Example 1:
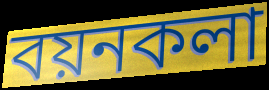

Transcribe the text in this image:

বয়নকলা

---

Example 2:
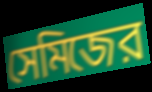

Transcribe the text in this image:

সেমিজের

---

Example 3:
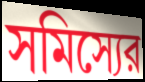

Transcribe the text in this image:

সমিস্যের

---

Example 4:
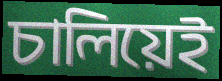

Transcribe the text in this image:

চালিয়েই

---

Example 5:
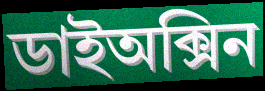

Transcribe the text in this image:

ডাইঅক্সিন